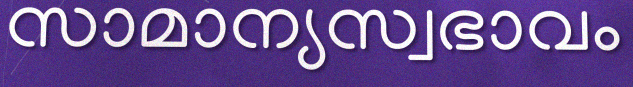
സാമാന്യസ്വഭാവം